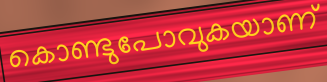
കൊണ്ടുപോവുകയാണ്